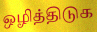
ஒழித்திடுக